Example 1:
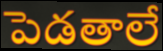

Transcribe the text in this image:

పెడతాలే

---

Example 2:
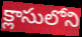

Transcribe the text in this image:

క్లాసులోని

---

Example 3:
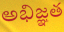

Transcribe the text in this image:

అభిజ్ఞత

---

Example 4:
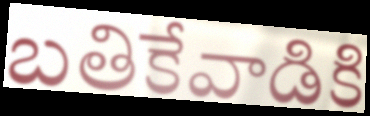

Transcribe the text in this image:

బతికేవాడికి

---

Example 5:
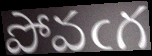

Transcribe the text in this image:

పోవఁగ